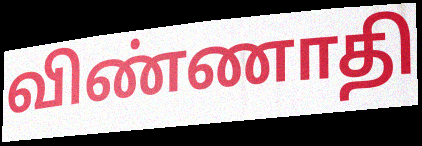
விண்ணாதி